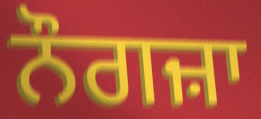
ਨੌਗਜ਼ਾ